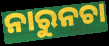
ନାରୁନଚା